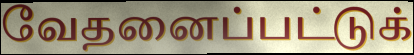
வேதனைப்பட்டுக்